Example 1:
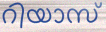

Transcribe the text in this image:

റിയാസ്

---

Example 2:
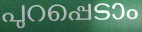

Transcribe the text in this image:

പുറപ്പെടാം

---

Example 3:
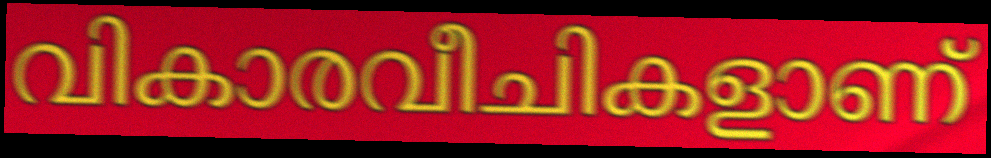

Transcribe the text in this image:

വികാരവീചികളാണ്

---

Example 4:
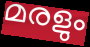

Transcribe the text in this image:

മരളും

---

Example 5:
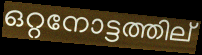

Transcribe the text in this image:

ഒറ്റനോട്ടത്തില്